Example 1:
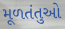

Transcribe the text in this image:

મૂળતંતુઓ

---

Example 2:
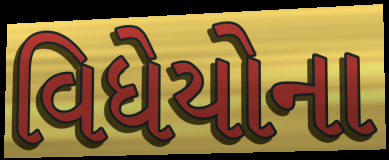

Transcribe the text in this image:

વિધેયોના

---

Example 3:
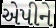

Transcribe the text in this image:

એપીને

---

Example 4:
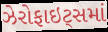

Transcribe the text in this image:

ઝેરોફાઇટ્સમાં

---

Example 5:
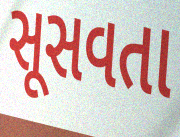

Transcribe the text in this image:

સૂસવતા